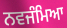
ਨਵਜੰਮਿਆ